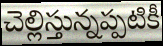
చెల్లిస్తున్నప్పటికీ